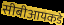
सीबीआयकडे